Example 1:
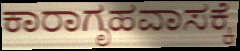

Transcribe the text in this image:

ಕಾರಾಗೃಹವಾಸಕ್ಕೆ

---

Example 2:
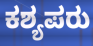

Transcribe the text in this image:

ಕಶ್ಯಪರು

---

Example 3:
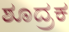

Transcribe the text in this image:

ಶೂದ್ರಕ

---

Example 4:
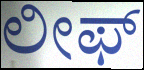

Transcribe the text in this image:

ಲೀಫ್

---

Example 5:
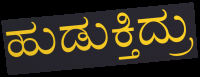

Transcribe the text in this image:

ಹುಡುಕ್ತಿದ್ರು